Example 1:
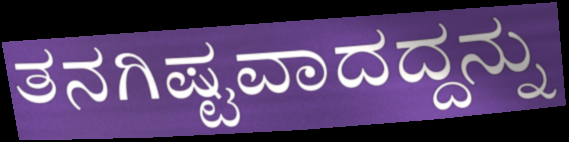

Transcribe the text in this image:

ತನಗಿಷ್ಟವಾದದ್ದನ್ನು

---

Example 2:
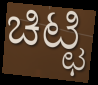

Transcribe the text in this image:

ಚಿಟ್ಟಿ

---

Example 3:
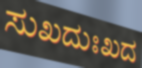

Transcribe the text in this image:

ಸುಖದುಃಖದ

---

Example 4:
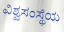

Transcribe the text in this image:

ವಿಶ್ವಸಂಸ್ಥೆಯ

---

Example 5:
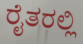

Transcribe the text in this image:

ರೈತರಲ್ಲಿ